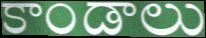
కాండాలు